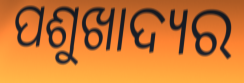
ପଶୁଖାଦ୍ୟର